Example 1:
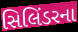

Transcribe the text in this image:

સિલિંડરના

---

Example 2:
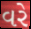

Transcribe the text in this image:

વરે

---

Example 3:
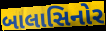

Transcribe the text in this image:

બાલાસિનોર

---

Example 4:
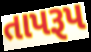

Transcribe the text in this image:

તાપરૂપ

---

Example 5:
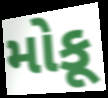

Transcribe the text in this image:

મોકૂ